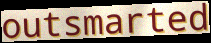
outsmarted